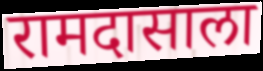
रामदासाला